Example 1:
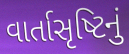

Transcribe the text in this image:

વાર્તાસૃષ્ટિનું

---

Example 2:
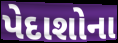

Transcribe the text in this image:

પેદાશોના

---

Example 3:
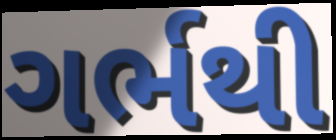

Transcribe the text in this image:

ગર્ભથી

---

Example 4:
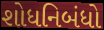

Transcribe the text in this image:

શોધનિબંધો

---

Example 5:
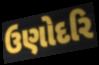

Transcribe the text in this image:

ઉણોદરિ